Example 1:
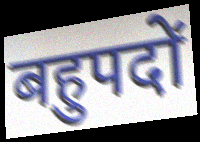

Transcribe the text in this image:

बहुपदों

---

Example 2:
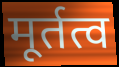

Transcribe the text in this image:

मूर्तत्व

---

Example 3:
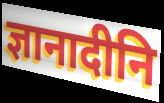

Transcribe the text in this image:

ज्ञानादीनि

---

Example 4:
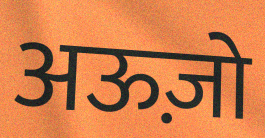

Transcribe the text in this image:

अऊज़ो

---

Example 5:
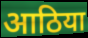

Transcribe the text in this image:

आठिया